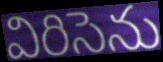
విరిసెను